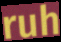
ruh